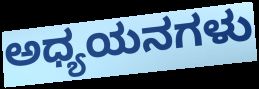
ಅಧ್ಯಯನಗಳು